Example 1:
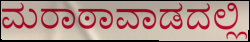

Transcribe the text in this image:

ಮರಾಠಾವಾಡದಲ್ಲಿ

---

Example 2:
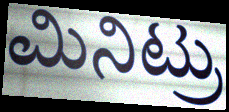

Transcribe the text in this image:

ಮಿನಿಟ್ರು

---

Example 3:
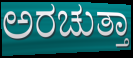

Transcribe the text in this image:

ಅರಚುತ್ತಾ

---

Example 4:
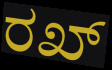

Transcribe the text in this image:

ರಖ್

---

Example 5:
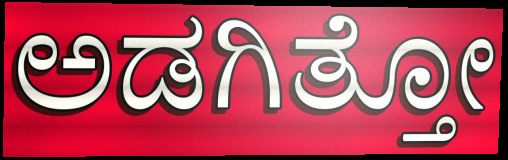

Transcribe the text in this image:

ಅಡಗಿತ್ತೋ